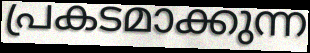
പ്രകടമാക്കുന്ന